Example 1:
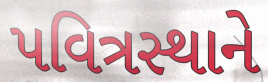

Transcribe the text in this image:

પવિત્રસ્થાને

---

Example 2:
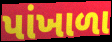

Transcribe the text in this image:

પાંખાળા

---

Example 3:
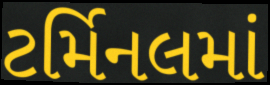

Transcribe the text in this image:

ટર્મિનલમાં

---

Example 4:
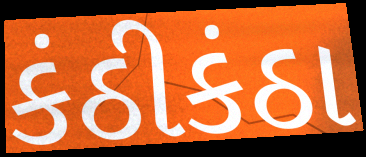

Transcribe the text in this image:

કંઠીકંઠા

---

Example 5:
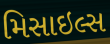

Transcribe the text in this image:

મિસાઇલ્સ